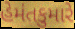
હેમંતકુમારે